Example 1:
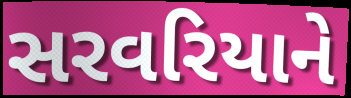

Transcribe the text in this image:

સરવરિયાને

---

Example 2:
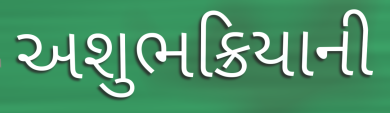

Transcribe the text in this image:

અશુભક્રિયાની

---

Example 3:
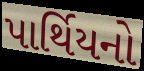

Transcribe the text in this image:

પાર્થિયનો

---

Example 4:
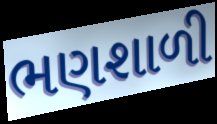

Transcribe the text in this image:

ભણશાળી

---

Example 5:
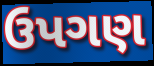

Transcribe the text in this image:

ઉપગણ